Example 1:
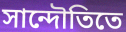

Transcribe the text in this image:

সান্দৌতিতে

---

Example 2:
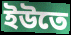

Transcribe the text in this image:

ইউতে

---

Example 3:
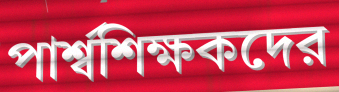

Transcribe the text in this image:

পার্শ্বশিক্ষকদের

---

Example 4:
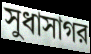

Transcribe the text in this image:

সুধাসাগর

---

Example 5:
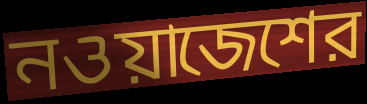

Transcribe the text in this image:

নওয়াজেশের